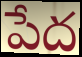
పేద